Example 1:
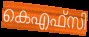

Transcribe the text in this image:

കെഎഫ്സി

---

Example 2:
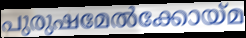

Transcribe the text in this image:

പുരുഷമേൽക്കോയ്മ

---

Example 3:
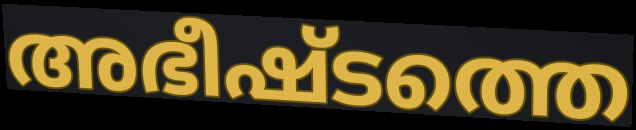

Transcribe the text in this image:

അഭീഷ്ടത്തെ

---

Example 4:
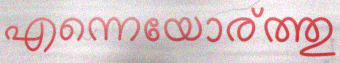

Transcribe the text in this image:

എന്നെയോര്ത്തു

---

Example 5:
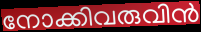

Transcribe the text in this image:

നോക്കിവരുവിൻ